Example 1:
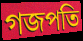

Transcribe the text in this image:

গজপতি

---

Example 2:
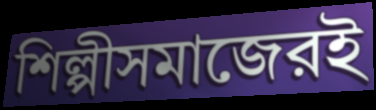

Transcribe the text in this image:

শিল্পীসমাজেরই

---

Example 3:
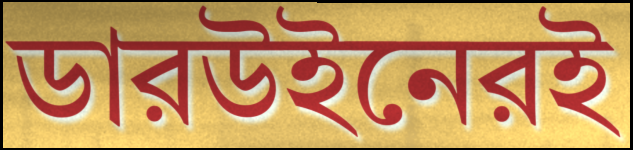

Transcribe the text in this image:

ডারউইনেরই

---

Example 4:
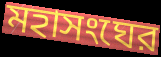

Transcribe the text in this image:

মহাসংঘের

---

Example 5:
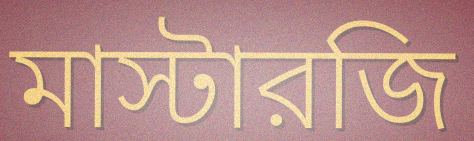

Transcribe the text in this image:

মাস্টারজি